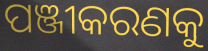
ପଞ୍ଜୀକରଣକୁ